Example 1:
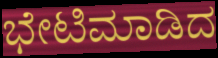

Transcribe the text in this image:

ಭೇಟಿಮಾಡಿದ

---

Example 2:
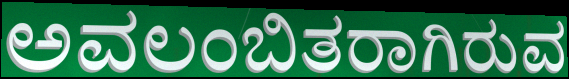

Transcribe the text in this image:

ಅವಲಂಬಿತರಾಗಿರುವ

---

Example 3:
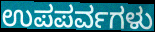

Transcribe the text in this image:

ಉಪಪರ್ವಗಳು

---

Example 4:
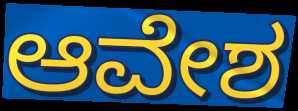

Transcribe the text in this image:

ಆವೇಶ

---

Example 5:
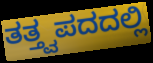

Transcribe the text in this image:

ತತ್ತ್ವಪದದಲ್ಲಿ